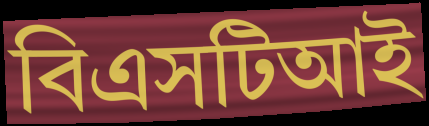
বিএসটিআই